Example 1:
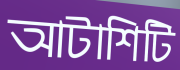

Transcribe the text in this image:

আটাশিটি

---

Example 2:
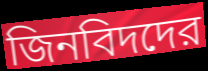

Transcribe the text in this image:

জিনবিদদের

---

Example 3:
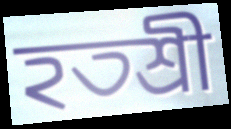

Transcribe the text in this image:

হতশ্রী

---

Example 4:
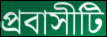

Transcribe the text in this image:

প্রবাসীটি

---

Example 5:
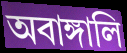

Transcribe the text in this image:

অবাঙ্গালি